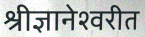
श्रीज्ञानेश्वरीत